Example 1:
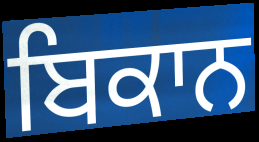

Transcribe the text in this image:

ਬਿਕਾਨ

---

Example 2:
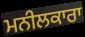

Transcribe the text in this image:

ਮਨੀਲਕਾਰਾ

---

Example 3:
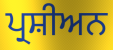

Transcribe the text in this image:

ਪ੍ਰਸ਼ੀਅਨ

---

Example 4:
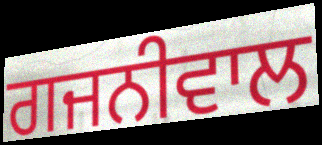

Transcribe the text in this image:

ਗਜਨੀਵਾਲ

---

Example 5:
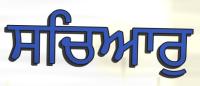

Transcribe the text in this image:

ਸਚਿਆਰੁ